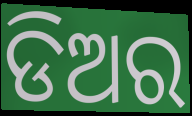
ଡିଅର